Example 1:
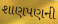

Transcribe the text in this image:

શાણપણની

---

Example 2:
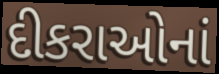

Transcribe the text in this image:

દીકરાઓનાં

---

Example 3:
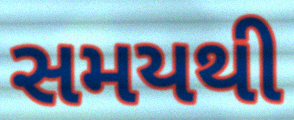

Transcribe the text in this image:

સમયથી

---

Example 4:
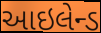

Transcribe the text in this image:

આઇલેન્ડ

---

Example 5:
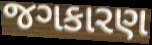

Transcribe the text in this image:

જગકારણ